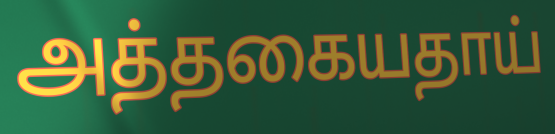
அத்தகையதாய்